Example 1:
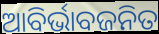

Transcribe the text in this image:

ଆବିର୍ଭାବଜନିତ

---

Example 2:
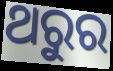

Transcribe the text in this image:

ଥରୁର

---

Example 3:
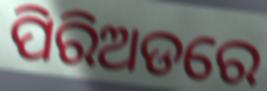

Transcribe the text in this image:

ପିରିଅଡରେ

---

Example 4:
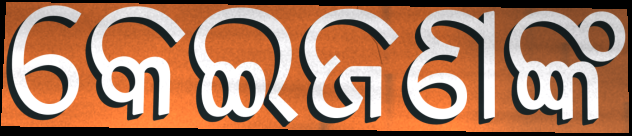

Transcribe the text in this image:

କେଇଜଣଙ୍କ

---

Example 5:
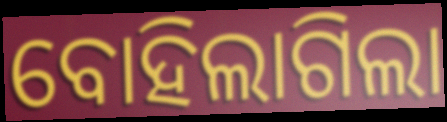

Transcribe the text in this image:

ବୋହିଲାଗିଲା